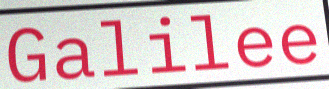
Galilee